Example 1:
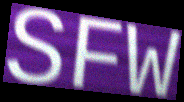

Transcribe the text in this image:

SFW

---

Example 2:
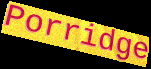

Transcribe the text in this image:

Porridge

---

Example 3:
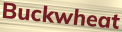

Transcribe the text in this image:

Buckwheat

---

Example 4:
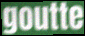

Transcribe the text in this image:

goutte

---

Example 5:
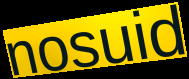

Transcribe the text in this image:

nosuid